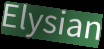
Elysian